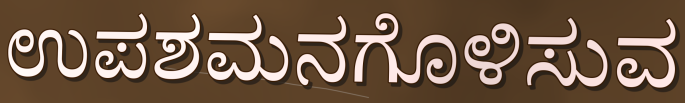
ಉಪಶಮನಗೊಳಿಸುವ